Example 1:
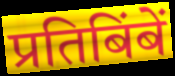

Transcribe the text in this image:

प्रतिबिंबें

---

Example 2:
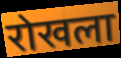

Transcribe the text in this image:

रोखला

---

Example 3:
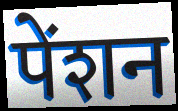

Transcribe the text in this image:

पेंशन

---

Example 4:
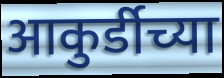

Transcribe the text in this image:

आकुर्डीच्या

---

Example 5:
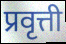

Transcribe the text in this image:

प्रवृत्ती